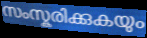
സംസ്കരിക്കുകയും